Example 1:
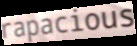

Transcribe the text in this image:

rapacious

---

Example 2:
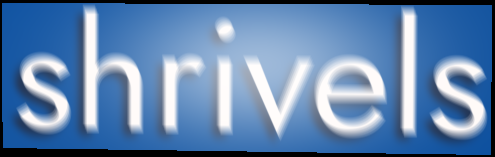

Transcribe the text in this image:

shrivels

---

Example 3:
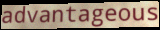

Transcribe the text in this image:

advantageous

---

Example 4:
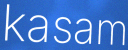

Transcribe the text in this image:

kasam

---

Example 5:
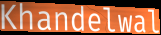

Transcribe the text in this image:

Khandelwal